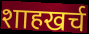
शाहखर्च